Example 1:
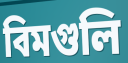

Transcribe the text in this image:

বিমগুলি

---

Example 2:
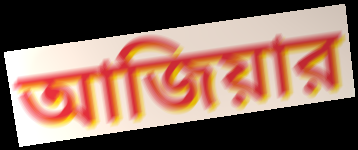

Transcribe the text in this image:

আজিয়ার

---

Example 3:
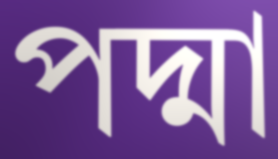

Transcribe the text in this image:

পদ্মা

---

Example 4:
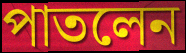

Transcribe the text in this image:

পাতলেন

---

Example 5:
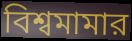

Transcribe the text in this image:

বিশ্বমামার